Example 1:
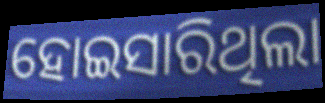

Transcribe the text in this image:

ହୋଇସାରିଥିଲା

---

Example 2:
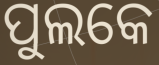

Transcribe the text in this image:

ପୁଲକେ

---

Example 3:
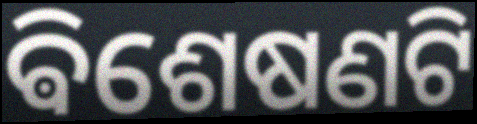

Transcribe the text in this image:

ଵିଶେଷଣଟି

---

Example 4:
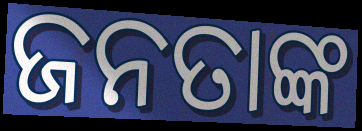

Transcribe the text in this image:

ଜନତାଙ୍କ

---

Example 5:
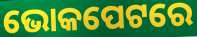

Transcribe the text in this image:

ଭୋକପେଟରେ